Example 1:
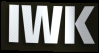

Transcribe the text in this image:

IWK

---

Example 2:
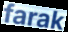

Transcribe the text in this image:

farak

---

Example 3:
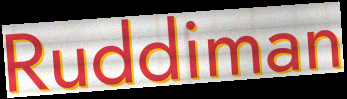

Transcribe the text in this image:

Ruddiman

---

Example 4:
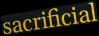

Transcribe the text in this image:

sacrificial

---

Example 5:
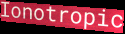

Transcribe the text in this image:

Ionotropic